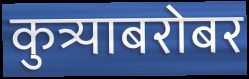
कुत्र्याबरोबर